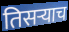
तिसऱ्याच